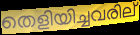
തെളിയിച്ചവരില്